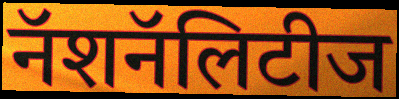
नॅशनॅलिटीज